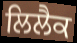
ਲਿਲੈਕ